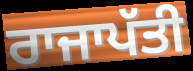
ਰਾਜਾਪੱਤੀ